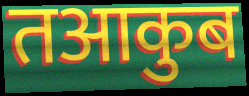
तआकुब